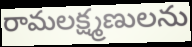
రామలక్ష్మణులను